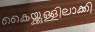
കൈയ്ക്കുള്ളിലാക്കി